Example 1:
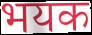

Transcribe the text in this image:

भयक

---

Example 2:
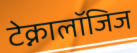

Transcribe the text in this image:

टेक्नालॉजिज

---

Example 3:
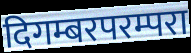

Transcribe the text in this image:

दिगम्बरपरम्परा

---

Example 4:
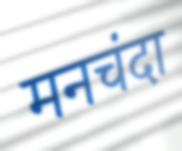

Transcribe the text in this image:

मनचंदा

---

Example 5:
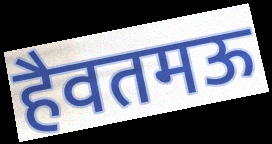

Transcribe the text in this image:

हैवतमऊ